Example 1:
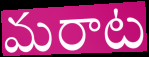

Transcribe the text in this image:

మరాట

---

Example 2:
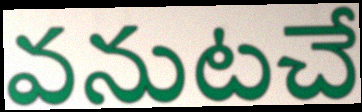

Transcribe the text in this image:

వనుటచే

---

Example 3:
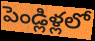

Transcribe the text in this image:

పెండ్లిళ్లలో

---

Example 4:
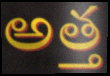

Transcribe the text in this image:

అత్త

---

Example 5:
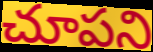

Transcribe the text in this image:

చూపని